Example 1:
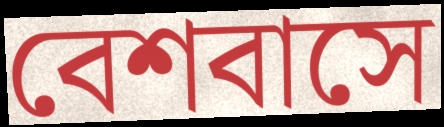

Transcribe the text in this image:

বেশবাসে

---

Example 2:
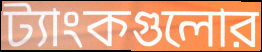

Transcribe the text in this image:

ট্যাংকগুলোর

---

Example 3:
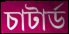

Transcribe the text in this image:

চাটার্ড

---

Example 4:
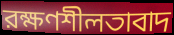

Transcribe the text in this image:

রক্ষণশীলতাবাদ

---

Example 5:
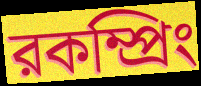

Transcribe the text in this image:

রকম্প্রিং